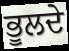
ਭੂਲਦੇ